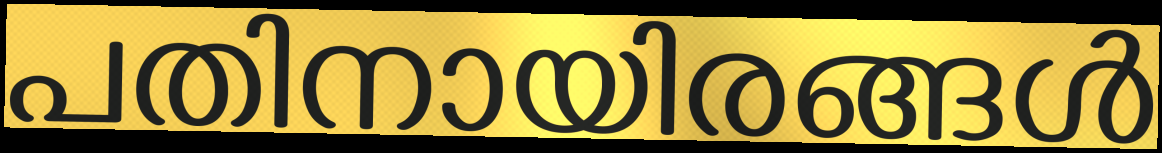
പതിനായിരങ്ങൾ